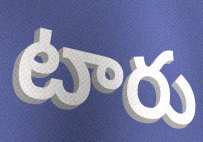
టారు